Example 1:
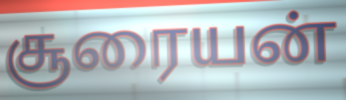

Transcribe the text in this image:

சூரையன்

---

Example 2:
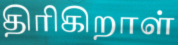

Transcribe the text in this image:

திரிகிறாள்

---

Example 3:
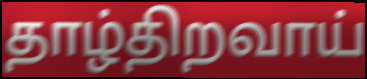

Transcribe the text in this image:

தாழ்திறவாய்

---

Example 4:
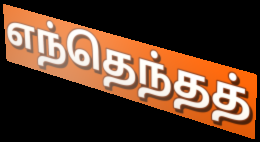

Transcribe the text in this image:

எந்தெந்தத்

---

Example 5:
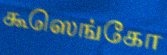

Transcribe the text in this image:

கூஸெங்கோ